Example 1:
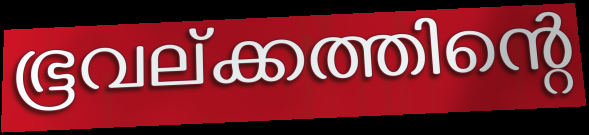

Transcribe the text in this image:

ഭൂവല്ക്കത്തിന്റെ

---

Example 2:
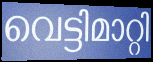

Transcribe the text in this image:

വെട്ടിമാറ്റി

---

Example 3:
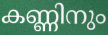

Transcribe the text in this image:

കണ്ണിനും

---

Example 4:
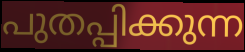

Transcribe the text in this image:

പുതപ്പിക്കുന്ന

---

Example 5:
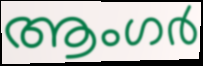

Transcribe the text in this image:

ആംഗർ